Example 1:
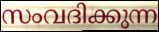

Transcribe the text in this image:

സംവദിക്കുന്ന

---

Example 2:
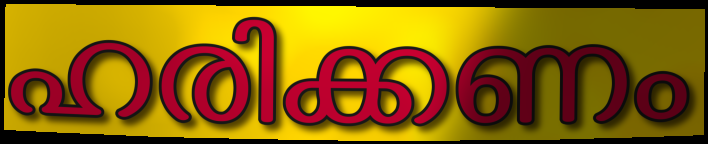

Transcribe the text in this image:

ഹരിക്കണം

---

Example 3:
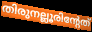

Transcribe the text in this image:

തിരുനല്ലൂരിന്റേത്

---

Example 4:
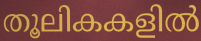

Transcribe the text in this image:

തൂലികകളിൽ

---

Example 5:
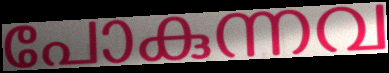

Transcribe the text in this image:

പോകുന്നവ